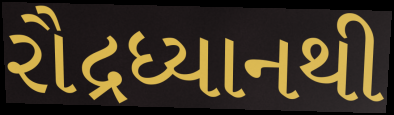
રૌદ્રધ્યાનથી